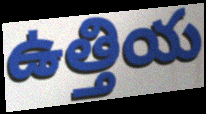
ఉత్తియ